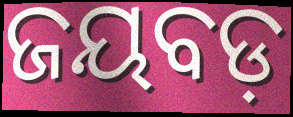
ଜୟବଡ଼